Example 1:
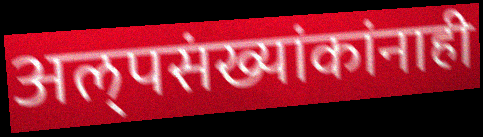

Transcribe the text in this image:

अल्पसंख्यांकांनाही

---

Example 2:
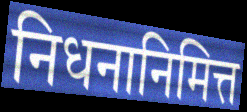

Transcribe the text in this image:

निधनानिमित्त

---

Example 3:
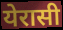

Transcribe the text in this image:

येरासी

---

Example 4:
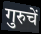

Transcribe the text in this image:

गुरुचें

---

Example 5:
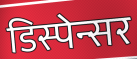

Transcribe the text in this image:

डिस्पेन्सर